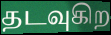
தடவுகிற